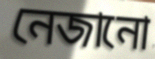
নেজানো